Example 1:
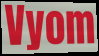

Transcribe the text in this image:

Vyom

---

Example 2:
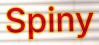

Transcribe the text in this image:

Spiny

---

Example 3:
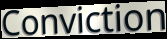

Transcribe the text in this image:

Conviction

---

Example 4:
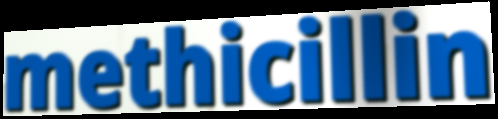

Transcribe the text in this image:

methicillin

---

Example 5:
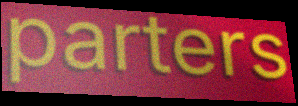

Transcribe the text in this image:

parters